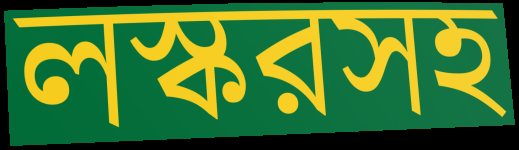
লস্করসহ